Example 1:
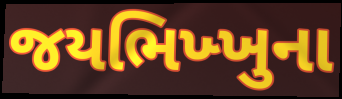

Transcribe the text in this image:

જયભિખ્ખુના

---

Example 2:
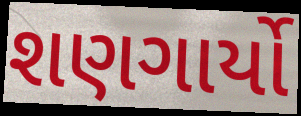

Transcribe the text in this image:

શણગાર્યો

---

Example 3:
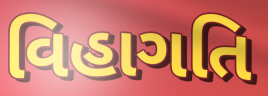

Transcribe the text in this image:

વિહાગતિ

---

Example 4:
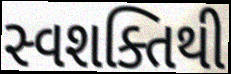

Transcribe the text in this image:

સ્વશક્તિથી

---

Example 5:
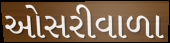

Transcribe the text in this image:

ઓસરીવાળા